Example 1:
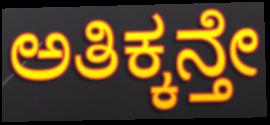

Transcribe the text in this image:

ಅತಿಕ್ಕನ್ತೇ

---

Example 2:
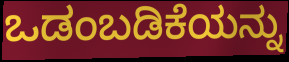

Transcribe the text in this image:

ಒಡಂಬಡಿಕೆಯನ್ನು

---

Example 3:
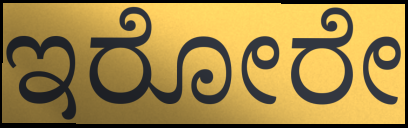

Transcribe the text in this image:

ಇರೋರೇ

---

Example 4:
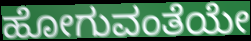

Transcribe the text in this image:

ಹೋಗುವಂತೆಯೇ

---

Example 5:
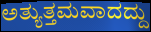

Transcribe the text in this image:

ಅತ್ಯುತ್ತಮವಾದದ್ದು